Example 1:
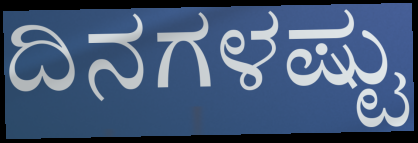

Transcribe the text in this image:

ದಿನಗಳಷ್ಟು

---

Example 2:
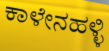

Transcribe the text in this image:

ಕಾಳೇನಹಳ್ಳಿ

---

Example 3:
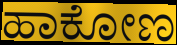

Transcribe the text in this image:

ಹಾಕೋಣ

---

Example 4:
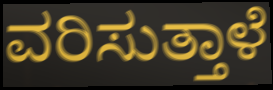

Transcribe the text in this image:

ವರಿಸುತ್ತಾಳೆ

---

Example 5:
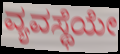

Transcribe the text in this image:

ವ್ಯವಸ್ಥೆಯೇ